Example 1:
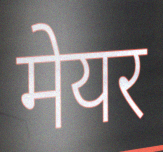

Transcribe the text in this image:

मेयर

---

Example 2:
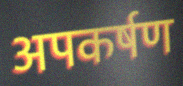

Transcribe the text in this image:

अपकर्षण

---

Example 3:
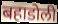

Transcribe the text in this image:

बहाडोली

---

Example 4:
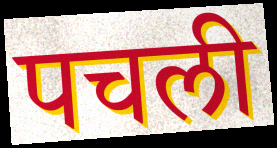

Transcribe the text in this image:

पचली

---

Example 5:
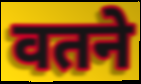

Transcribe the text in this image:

वतने